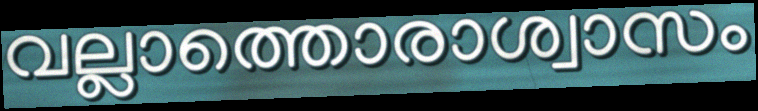
വല്ലാത്തൊരാശ്വാസം